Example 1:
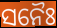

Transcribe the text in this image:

ସନୈଃ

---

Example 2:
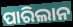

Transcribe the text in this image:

ପାରିଲାନ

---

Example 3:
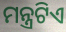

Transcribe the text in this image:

ମନ୍ତ୍ରଟିଏ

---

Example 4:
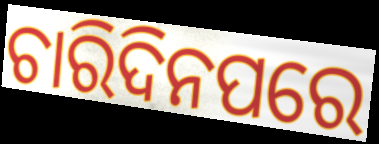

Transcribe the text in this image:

ଚାରିଦିନପରେ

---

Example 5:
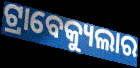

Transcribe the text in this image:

ଟ୍ରାବେକ୍ୟୁଲାର